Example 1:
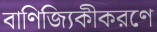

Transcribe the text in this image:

বাণিজ্যিকীকরণে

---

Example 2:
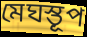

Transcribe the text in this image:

মেঘস্তূপ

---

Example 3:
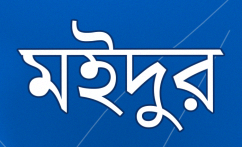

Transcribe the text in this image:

মইদুর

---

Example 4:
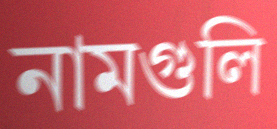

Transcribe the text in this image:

নামগুলি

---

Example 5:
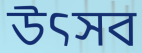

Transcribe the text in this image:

উত্‍সব